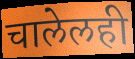
चालेलही